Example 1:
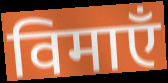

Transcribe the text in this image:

विमाएँ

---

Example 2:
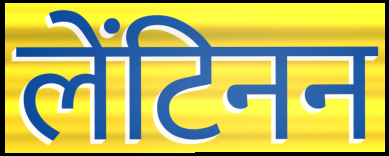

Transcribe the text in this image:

लेंटिनन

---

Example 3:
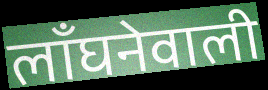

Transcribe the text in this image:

लाँघनेवाली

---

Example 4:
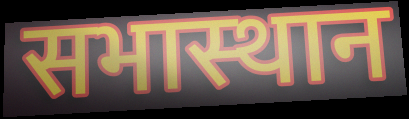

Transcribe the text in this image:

सभास्थान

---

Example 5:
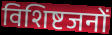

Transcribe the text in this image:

विशिष्टजनों